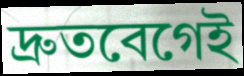
দ্রুতবেগেই